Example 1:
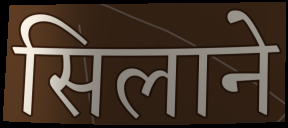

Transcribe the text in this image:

सिलाने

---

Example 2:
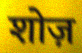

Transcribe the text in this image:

शोज़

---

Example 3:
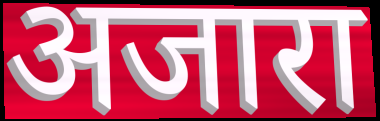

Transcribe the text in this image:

अजारा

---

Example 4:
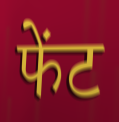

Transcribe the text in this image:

फेंट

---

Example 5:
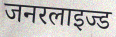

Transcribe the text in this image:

जनरलाइज्ड